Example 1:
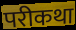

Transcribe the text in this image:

परीकथा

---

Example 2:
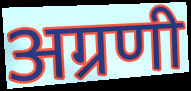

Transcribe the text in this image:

अग्रणी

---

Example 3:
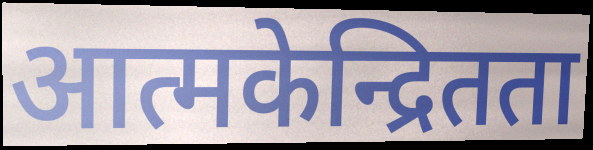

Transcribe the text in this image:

आत्मकेन्द्रितता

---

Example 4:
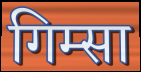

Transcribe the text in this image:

गिम्सा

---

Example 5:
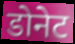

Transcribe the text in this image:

डोनेट